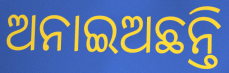
ଅନାଇଅଛନ୍ତି